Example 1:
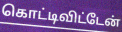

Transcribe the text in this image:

கொட்டிவிட்டேன்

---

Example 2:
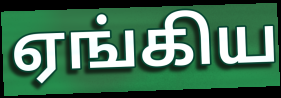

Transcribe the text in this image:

ஏங்கிய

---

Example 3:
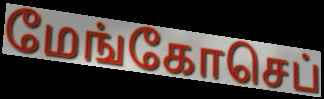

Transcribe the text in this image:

மேங்கோசெப்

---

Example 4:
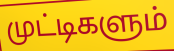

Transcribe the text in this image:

முட்டிகளும்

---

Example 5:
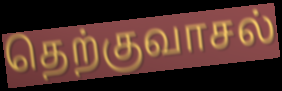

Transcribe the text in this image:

தெற்குவாசல்